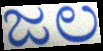
ಜಲ